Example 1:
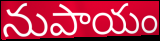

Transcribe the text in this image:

నుపాయం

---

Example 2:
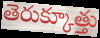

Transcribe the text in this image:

తెరుక్కూత్తు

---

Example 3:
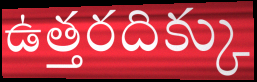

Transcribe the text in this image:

ఉత్తరదిక్కు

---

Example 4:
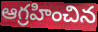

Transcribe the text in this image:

ఆగ్రహించిన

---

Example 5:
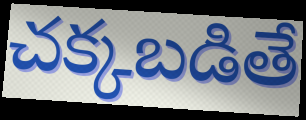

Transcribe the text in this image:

చక్కబడితే